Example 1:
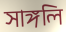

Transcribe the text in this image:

সাঙ্গলি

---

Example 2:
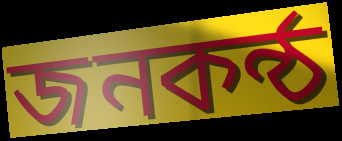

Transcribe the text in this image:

জনকন্ঠ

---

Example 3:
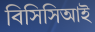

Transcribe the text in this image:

বিসিসিআই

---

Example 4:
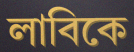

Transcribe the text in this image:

লাবিকে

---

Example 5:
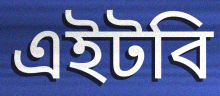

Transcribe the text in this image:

এইটবি